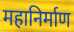
महानिर्माण